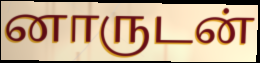
னாருடன்